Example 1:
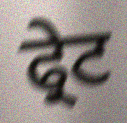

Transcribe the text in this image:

ਫ੍ਰੇਟ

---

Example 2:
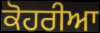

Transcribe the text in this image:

ਕੋਹਰੀਆ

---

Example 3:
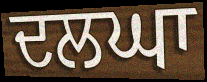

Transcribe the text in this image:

ਦਲਘਾ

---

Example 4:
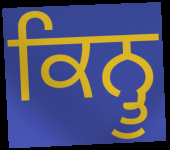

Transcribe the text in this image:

ਕਿਨ੍ਤੁ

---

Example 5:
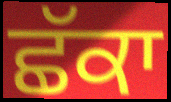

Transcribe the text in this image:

ਛੱਕਾ